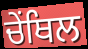
ਚੇਂਥਿਲ